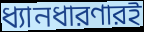
ধ্যানধারণারই